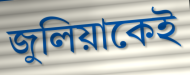
জুলিয়াকেই